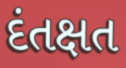
દંતક્ષત